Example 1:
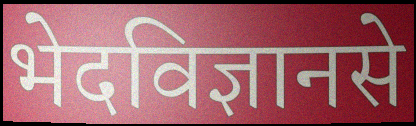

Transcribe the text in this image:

भेदविज्ञानसे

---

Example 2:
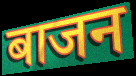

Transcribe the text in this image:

बाजन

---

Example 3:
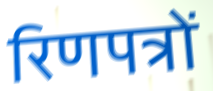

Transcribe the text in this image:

रिणपत्रों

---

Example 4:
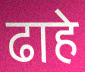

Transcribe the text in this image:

ढाहे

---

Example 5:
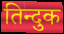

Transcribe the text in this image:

तिन्दुक